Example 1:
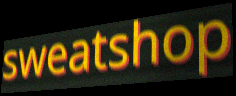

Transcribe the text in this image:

sweatshop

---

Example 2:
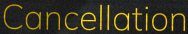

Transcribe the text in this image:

Cancellation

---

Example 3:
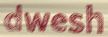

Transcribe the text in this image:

dwesh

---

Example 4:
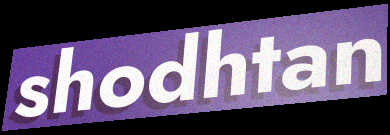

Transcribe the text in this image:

shodhtan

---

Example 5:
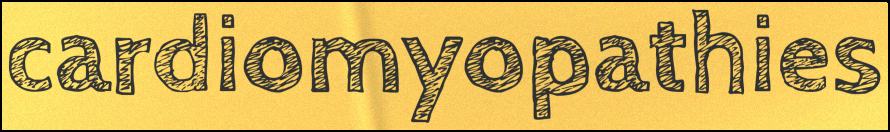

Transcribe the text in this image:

cardiomyopathies